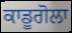
ਕਾਡੂਗੋਲਾ